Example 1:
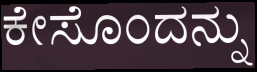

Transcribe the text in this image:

ಕೇಸೊಂದನ್ನು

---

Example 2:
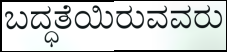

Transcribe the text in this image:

ಬದ್ಧತೆಯಿರುವವರು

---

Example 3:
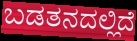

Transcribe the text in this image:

ಬಡತನದಲ್ಲಿದೆ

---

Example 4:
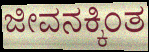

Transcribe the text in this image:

ಜೀವನಕ್ಕಿಂತ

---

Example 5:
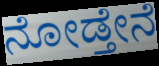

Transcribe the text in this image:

ನೋಡ್ತೇನೆ